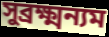
সুব্রক্ষ্মন্যম